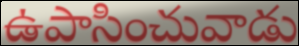
ఉపాసించువాడు